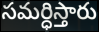
సమర్ధిస్తారు